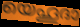
യെഹൂദാ